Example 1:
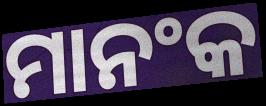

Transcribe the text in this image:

ମାନଂକ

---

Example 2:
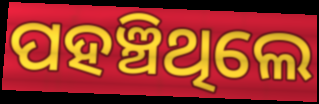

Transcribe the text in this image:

ପହଞ୍ଚିଥିଲେ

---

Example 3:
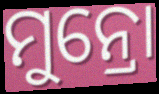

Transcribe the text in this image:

ମୁନ୍ରୋ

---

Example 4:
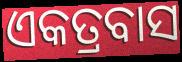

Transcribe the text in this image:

ଏକତ୍ରବାସ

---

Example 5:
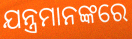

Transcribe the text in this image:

ଯନ୍ତ୍ରମାନଙ୍କରେ